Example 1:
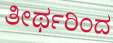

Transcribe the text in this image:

ತೀರ್ಥರಿಂದ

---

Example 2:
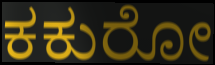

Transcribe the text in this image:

ಕಕುರೋ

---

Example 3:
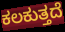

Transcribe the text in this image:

ಕಲಕುತ್ತದೆ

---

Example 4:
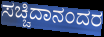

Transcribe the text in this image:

ಸಚ್ಚಿದಾನಂದರ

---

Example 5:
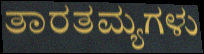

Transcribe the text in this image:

ತಾರತಮ್ಯಗಳು